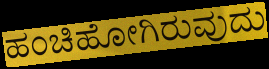
ಹಂಚಿಹೋಗಿರುವುದು